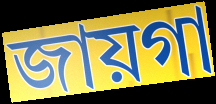
জায়গা